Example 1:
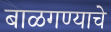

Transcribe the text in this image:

बाळगण्याचे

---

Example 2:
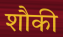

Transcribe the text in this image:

शौकी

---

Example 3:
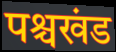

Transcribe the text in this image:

पश्चखंड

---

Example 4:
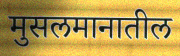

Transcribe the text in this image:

मुसलमानातील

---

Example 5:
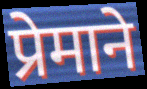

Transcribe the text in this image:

प्रेमाने